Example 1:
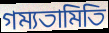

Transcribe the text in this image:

গম্যতামিতি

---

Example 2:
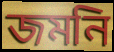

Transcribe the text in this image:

জমনি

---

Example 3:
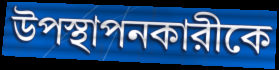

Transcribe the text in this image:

উপস্থাপনকারীকে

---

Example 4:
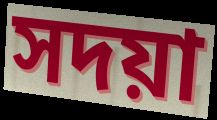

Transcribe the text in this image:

সদয়া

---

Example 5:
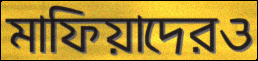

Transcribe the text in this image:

মাফিয়াদেরও